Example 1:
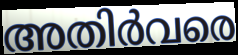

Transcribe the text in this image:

അതിർവരെ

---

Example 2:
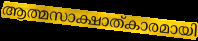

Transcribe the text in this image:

ആത്മസാക്ഷാത്കാരമായി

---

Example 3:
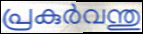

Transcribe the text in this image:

പ്രകുർവന്തു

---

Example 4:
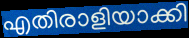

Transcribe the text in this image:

എതിരാളിയാക്കി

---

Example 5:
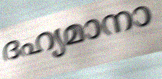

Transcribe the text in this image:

ദഹ്യമാനാ